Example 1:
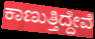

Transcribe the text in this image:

ಕಾಣುತ್ತಿದ್ದೇವೆ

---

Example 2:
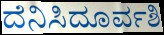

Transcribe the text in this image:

ದೆನಿಸಿದೂರ್ವಶಿ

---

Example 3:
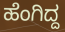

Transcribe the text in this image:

ಹೆಂಗಿದ್ದ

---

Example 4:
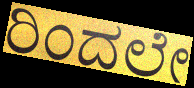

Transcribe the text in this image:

ರಿಂದಲೇ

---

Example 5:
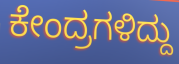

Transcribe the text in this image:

ಕೇಂದ್ರಗಳಿದ್ದು